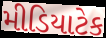
મીડિયાટેક